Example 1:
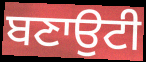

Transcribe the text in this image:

ਬਣਾਉਟੀ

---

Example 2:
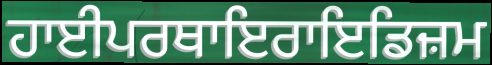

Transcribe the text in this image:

ਹਾਈਪਰਥਾਇਰਾਇਡਿਜ਼ਮ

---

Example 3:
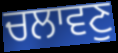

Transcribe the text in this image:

ਚਲਾਵਣੁ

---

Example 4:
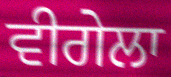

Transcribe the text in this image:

ਵੀਗੇਲਾ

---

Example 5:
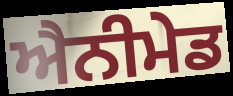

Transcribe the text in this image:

ਐਨੀਮੇਡ